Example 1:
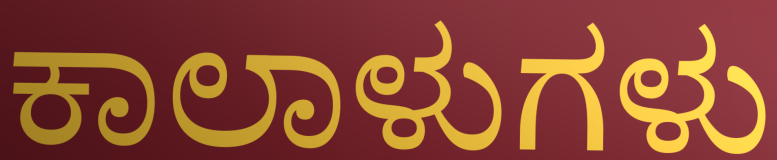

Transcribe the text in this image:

ಕಾಲಾಳುಗಳು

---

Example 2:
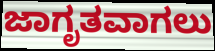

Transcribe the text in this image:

ಜಾಗೃತವಾಗಲು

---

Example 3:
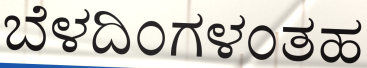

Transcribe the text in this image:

ಬೆಳದಿಂಗಳಂತಹ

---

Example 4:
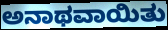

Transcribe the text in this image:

ಅನಾಥವಾಯಿತು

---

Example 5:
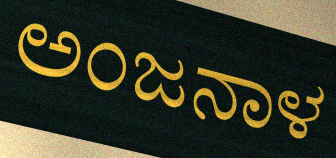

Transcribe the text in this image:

ಅಂಜನಾಳ